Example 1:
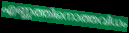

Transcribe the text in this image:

എണ്ണത്തിനൊത്തവിധം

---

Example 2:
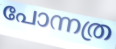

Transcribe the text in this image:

പോന്നത്ര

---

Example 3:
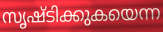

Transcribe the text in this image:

സൃഷ്ടിക്കുകയെന്ന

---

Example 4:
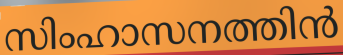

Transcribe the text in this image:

സിംഹാസനത്തിൻ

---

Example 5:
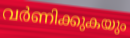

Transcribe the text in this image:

വർണിക്കുകയും